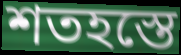
শতহস্তে